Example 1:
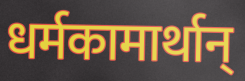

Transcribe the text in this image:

धर्मकामार्थान्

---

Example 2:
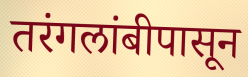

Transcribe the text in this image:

तरंगलांबीपासून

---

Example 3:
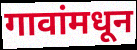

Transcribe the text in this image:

गावांमधून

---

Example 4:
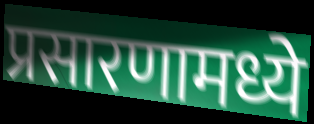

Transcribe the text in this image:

प्रसारणामध्ये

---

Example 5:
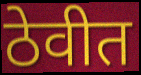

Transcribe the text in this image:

ठेवीत